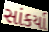
સાંકર્યા